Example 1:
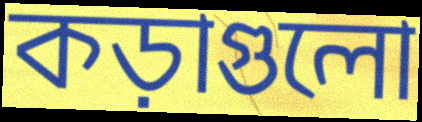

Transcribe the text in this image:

কড়াগুলো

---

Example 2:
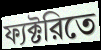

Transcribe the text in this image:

ফ্যক্টরিতে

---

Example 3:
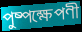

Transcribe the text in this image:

পুষ্পক্ষেপণী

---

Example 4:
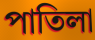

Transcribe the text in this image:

পাতিলা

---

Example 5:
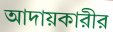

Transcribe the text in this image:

আদায়কারীর